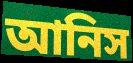
আনিস